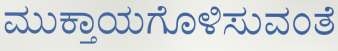
ಮುಕ್ತಾಯಗೊಳಿಸುವಂತೆ